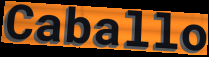
Caballo